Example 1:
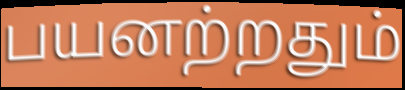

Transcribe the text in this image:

பயனற்றதும்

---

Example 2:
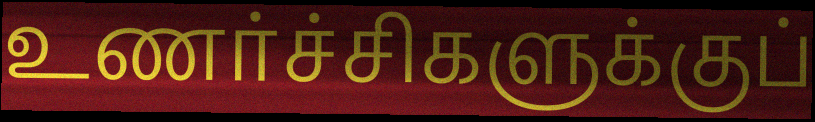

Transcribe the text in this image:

உணர்ச்சிகளுக்குப்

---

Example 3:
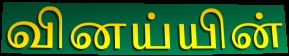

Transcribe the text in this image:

வினய்யின்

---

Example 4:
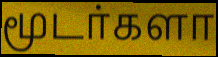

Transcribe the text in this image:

மூடர்களா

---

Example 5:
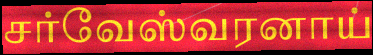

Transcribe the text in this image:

சர்வேஸ்வரனாய்